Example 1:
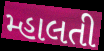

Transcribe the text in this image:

મ્હાલતી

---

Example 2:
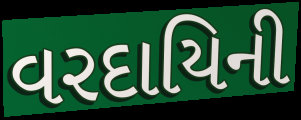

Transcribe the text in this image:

વરદાયિની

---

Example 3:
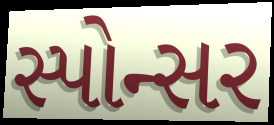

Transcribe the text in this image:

સ્પોન્સર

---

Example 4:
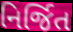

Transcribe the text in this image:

નિર્જિત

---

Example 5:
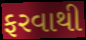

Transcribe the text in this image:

ફરવાથી